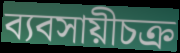
ব্যবসায়ীচক্র